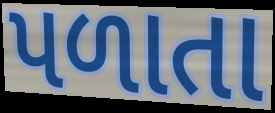
પળાતા